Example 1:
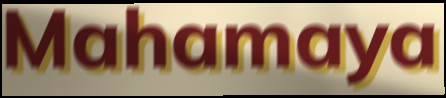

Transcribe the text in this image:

Mahamaya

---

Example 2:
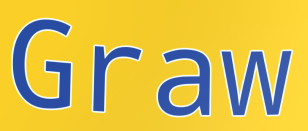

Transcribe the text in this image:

Graw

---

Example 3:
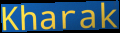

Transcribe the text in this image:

Kharak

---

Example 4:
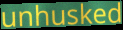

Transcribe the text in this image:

unhusked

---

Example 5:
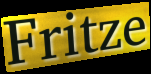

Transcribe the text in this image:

Fritze